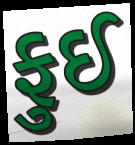
ફુઈ